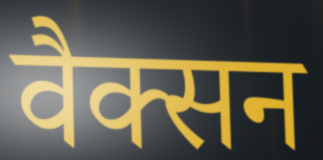
वैक्सन